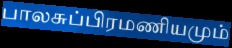
பாலசுப்பிரமணியமும்